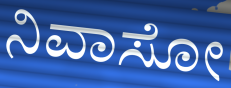
ನಿವಾಸೋ